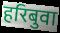
हरिबुवा